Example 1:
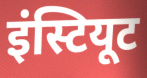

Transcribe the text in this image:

इंस्टियूट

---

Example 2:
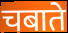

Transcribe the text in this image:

चबाते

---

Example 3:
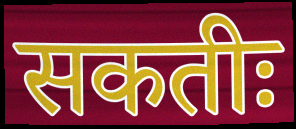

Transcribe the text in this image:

सकतीः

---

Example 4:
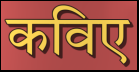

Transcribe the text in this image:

कविए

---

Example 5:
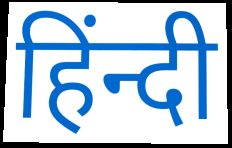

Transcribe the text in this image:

हिंन्दी